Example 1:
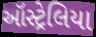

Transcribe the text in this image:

ઑસ્ટ્રેલિયા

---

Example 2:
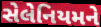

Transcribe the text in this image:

સેલેનિયમને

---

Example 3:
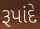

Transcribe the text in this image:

રૂપાંદે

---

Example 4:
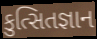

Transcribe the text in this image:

કુત્સિતજ્ઞાન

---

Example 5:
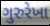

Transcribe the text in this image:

ગુરુરેખા